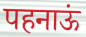
पहनाऊं